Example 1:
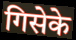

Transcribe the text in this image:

गिसेके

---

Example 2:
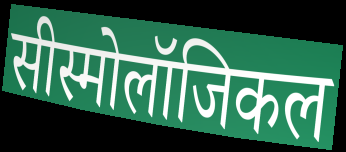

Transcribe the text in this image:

सीस्मोलॉजिकल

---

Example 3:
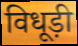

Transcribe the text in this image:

विधूड़ी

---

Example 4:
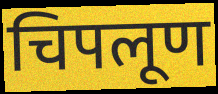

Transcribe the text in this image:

चिपलूण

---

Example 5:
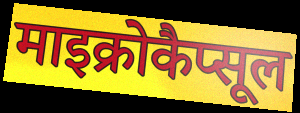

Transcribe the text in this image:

माइक्रोकैप्सूल